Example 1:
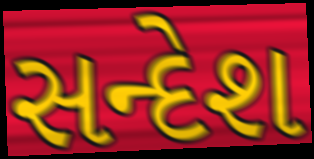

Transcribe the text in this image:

સન્દેશ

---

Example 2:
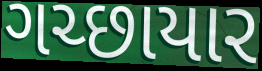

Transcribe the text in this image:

ગચ્છાયાર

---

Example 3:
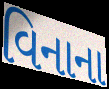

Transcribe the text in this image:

વિનાના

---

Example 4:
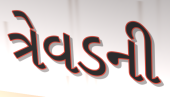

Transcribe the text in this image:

ત્રેવડની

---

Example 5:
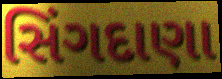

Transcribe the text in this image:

સિંગદાણા